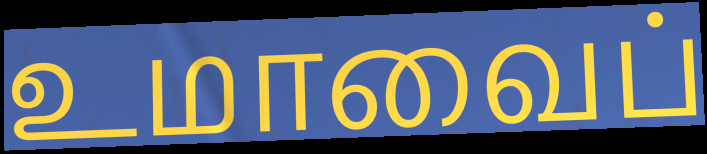
உமாவைப்